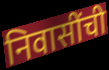
निवासींची